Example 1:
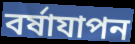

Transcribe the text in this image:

বর্ষাযাপন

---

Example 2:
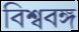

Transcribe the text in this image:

বিশ্ববঙ্গ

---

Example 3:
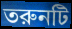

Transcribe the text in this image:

তরুনটি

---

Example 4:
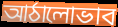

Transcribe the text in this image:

আঠালোভাব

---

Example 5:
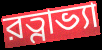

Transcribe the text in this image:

রত্নাভ্যা